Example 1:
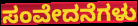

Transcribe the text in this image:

ಸಂವೇದನೆಗಳು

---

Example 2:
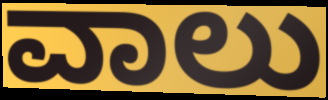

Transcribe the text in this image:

ವಾಲು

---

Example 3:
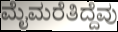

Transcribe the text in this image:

ಮೈಮರೆತಿದ್ದೆವು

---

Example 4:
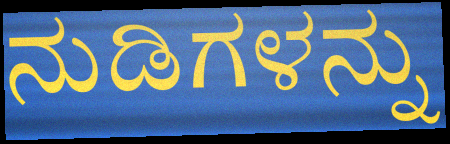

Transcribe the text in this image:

ನುಡಿಗಳನ್ನು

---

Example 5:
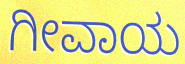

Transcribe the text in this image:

ಗೀವಾಯ